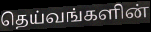
தெய்வங்களின்